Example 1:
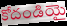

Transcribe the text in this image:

కోదండియై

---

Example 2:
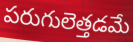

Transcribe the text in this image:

పరుగులెత్తడమే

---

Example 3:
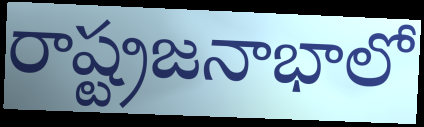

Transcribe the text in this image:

రాష్ట్రజనాభాలో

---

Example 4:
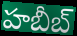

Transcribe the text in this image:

హబీబ్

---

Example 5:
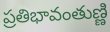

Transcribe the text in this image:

ప్రతిభావంతుణ్ణి